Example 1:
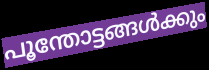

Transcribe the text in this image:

പൂന്തോട്ടങ്ങൾക്കും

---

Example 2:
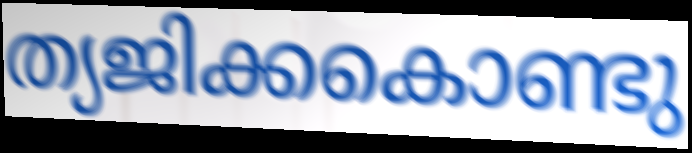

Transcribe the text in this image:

ത്യജിക്കകൊണ്ടു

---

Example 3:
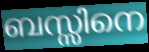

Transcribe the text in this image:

ബസ്സിനെ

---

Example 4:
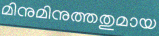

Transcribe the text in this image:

മിനുമിനുത്തതുമായ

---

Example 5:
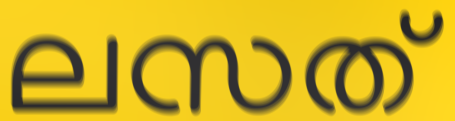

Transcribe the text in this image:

ലസത്